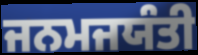
ਜਨਮਜਯੰਤੀ